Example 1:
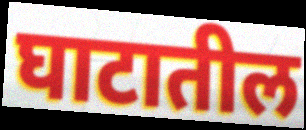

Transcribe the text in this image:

घाटातील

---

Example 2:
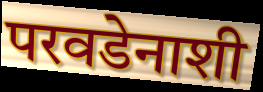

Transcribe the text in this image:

परवडेनाशी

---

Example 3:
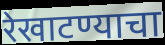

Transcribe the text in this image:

रेखाटण्याचा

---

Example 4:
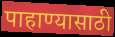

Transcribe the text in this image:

पाहाण्यासाठी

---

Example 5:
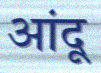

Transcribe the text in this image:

आंदू